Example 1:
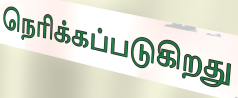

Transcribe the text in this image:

நெரிக்கப்படுகிறது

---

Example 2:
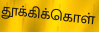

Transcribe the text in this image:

தூக்கிக்கொள்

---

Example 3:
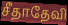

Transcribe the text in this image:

சீதாதேவி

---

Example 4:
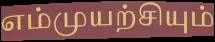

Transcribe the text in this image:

எம்முயற்சியும்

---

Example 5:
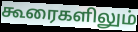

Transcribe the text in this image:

கூரைகளிலும்